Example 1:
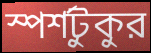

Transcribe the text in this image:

স্পর্শটুকুর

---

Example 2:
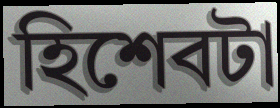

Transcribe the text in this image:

হিশেবটা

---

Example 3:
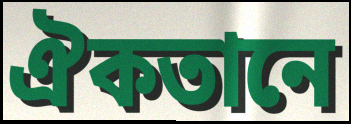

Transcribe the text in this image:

ঐকতানে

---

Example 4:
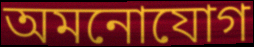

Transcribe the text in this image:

অমনোযোগ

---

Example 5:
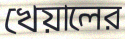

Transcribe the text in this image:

খেয়ালের